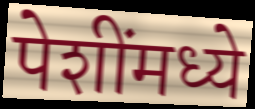
पेशींमध्ये